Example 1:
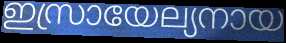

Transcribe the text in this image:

ഇസ്രായേല്യനായ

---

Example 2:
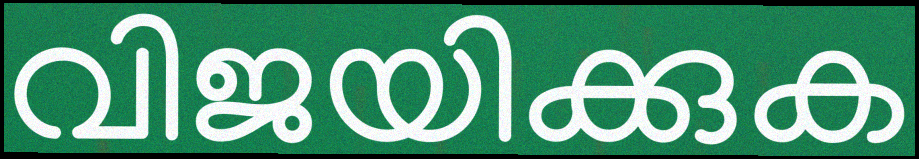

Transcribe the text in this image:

വിജയിക്കുക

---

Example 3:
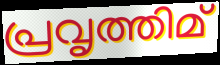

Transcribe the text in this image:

പ്രവൃത്തിമ്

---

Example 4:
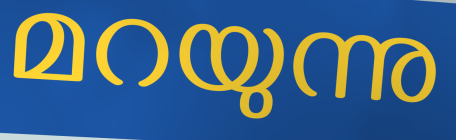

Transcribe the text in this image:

മറയുന്നു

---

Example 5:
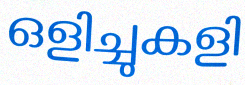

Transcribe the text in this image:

ഒളിച്ചുകളി